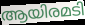
ആയിരമടി